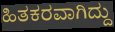
ಹಿತಕರವಾಗಿದ್ದು